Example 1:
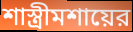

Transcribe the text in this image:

শাস্ত্রীমশায়ের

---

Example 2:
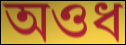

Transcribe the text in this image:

অওধ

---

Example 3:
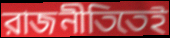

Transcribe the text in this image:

রাজনীতিতেই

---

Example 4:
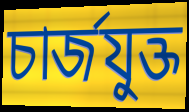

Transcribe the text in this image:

চার্জযুক্ত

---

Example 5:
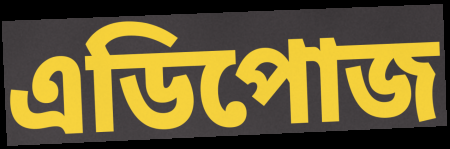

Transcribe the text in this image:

এডিপোজ